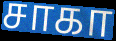
சாகா